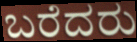
ಬರೆದರು